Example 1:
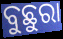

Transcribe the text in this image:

ବୁଛୁରା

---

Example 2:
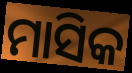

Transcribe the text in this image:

ମାସିକ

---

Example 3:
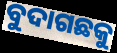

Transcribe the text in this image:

ବୁଦାଗଛକୁ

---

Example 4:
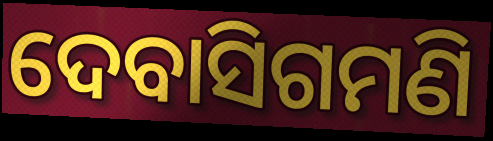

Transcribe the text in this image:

ଦେବାସିଗମଣି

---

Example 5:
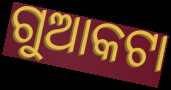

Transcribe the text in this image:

ଗୁଆକଟା